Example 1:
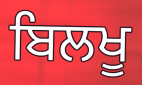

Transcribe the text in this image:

ਬਿਲਖੂ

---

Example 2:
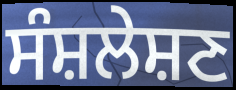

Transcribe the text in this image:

ਸੰਸ਼ਲੇਸ਼ਣ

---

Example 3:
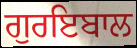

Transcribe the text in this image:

ਗੁਰਇਬਾਲ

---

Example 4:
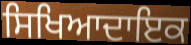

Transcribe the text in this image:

ਸਿਖਿਆਦਾਇਕ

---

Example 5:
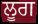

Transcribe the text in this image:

ਲੂਗ